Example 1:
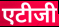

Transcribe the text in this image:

एटीजी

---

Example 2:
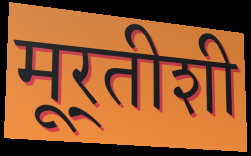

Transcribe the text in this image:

मूर्तीशी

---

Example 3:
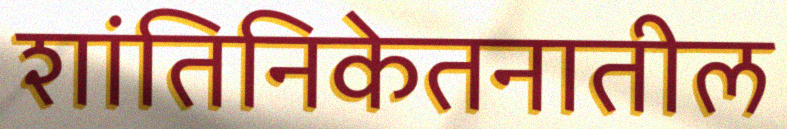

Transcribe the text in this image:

शांतिनिकेतनातील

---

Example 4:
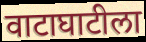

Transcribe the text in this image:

वाटाघाटीला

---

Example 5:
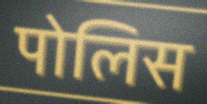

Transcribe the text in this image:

पोलिस